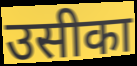
उसीका